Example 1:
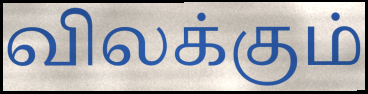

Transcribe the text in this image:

விலக்கும்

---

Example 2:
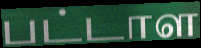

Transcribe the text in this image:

பட்டாள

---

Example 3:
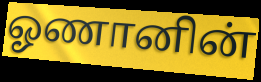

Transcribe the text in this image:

ஓணானின்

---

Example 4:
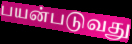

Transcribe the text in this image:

பயன்படுவது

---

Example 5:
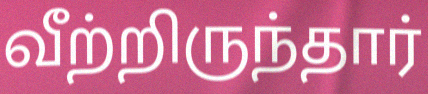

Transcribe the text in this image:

வீற்றிருந்தார்